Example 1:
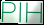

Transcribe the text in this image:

PIH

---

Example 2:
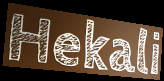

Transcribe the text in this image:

Hekali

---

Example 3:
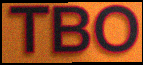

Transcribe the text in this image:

TBO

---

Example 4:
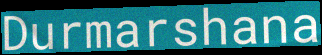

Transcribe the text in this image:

Durmarshana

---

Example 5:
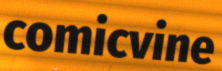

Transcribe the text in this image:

comicvine